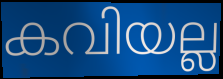
കവിയല്ല